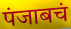
पंजाबचं